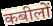
कबीलों